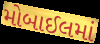
મોબાઈલમાં